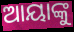
ଆୟାଙ୍କୁ